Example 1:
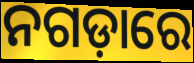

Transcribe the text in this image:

ନଗଡ଼ାରେ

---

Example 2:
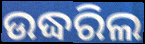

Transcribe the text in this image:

ଉଦ୍ଧରିଲ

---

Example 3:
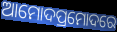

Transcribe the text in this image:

ଆମୋଦପ୍ରମୋଦରେ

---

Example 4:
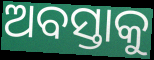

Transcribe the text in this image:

ଅବସ୍ତାକୁ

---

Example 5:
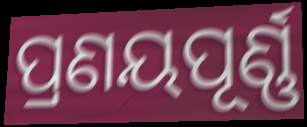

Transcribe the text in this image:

ପ୍ରଣୟପୂର୍ଣ୍ଣ